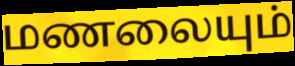
மணலையும்